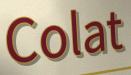
Colat